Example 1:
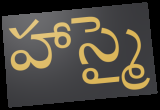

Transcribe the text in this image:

హాస్మై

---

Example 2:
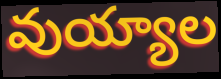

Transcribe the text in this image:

వుయ్యాల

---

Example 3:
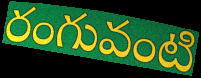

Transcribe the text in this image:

రంగువంటి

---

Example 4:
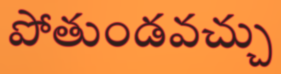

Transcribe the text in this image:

పోతుండవచ్చు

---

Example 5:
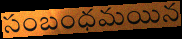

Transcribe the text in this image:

సంబంధమయిన